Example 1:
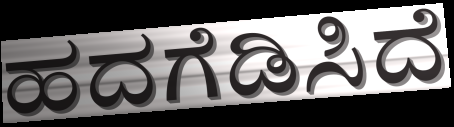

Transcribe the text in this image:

ಹದಗೆಡಿಸಿದೆ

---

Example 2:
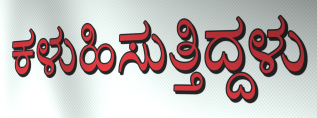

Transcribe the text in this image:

ಕಳುಹಿಸುತ್ತಿದ್ದಳು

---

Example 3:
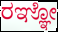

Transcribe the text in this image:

ರಞ್ಞೋ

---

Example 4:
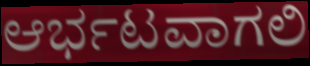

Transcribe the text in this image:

ಆರ್ಭಟವಾಗಲಿ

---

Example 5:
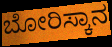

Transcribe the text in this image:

ಬೋರಿಸ್ಕಾನ